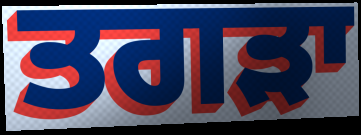
ਤਗੜਾ